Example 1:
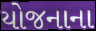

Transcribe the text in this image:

યોજનાના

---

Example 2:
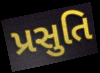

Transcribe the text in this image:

પ્રસુતિ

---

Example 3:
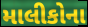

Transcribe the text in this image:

માલીકોના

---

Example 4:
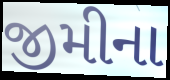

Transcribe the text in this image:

જીમીના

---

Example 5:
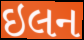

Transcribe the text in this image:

ઇલન